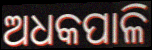
ଅଧକପାଳି